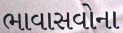
ભાવાસવોના